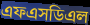
এফএসডিএল